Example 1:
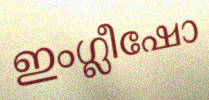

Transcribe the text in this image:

ഇംഗ്ലീഷോ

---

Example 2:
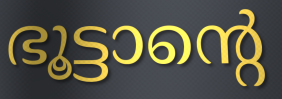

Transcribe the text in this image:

ഭൂട്ടാന്റെ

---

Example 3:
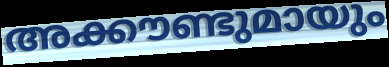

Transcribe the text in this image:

അക്കൗണ്ടുമായും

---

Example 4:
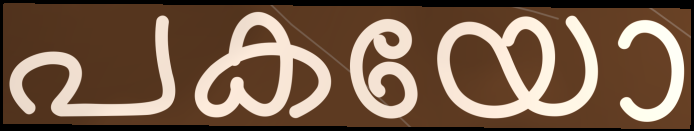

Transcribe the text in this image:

പകയോ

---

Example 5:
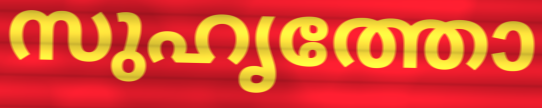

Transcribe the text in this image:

സുഹൃത്തോ